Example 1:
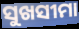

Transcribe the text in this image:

ସୁଖସୀମା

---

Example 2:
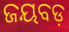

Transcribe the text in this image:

ଜୟବଡ଼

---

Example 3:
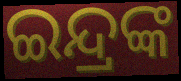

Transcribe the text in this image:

ଇନ୍ଦ୍ରଙ୍କ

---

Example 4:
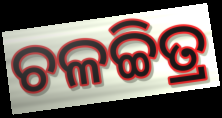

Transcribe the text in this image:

ଚଳଚ୍ଚିତ୍ର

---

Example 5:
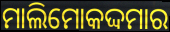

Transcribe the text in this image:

ମାଲିମୋକଦ୍ଦମାର